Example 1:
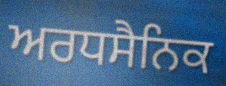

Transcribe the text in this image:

ਅਰਧਸੈਨਿਕ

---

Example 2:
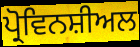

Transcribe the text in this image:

ਪ੍ਰੋਵਿਨਸ਼ੀਅਲ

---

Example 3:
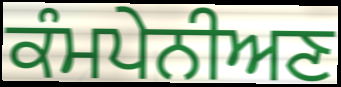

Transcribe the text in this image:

ਕੰਮਪੇਨੀਅਣ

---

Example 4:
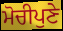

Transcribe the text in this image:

ਮੋਚੀਪੁਣੇ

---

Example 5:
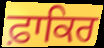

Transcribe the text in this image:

ਫ਼ਾਕਿਰ